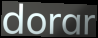
dorar